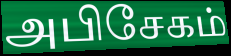
அபிசேகம்